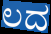
ಲದ